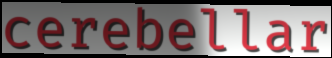
cerebellar